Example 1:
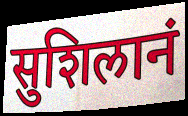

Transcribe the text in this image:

सुशिलानं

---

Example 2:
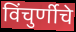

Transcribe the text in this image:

विंचुर्णीचे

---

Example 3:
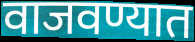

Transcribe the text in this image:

वाजवण्यात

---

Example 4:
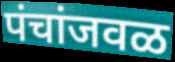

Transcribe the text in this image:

पंचांजवळ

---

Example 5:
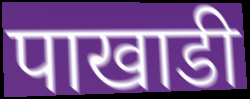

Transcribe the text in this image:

पाखाडी